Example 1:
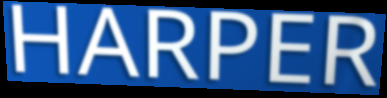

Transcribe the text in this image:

HARPER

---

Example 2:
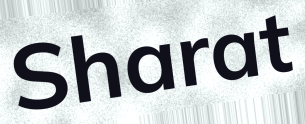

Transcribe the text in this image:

Sharat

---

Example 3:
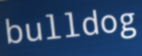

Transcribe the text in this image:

bulldog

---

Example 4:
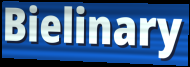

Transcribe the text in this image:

Bielinary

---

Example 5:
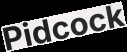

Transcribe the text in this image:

Pidcock